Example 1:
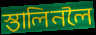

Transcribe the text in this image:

স্তালিনলৈ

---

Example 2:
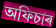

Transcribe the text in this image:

অফিচাৰ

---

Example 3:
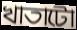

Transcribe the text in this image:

খাতাটো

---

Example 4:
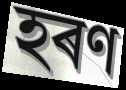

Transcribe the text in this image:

হৰণ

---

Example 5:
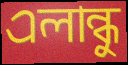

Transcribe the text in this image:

এলান্ধু